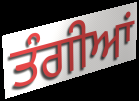
ਤੰਗੀਆਂ